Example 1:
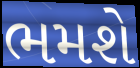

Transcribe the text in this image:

ભમશે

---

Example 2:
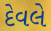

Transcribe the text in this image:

દેવલે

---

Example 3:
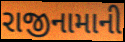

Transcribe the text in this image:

રાજીનામાની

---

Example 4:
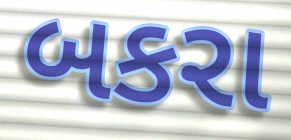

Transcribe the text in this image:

બકરા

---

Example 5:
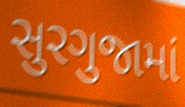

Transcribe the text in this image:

સુરગુજામાં